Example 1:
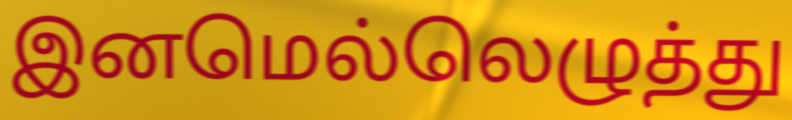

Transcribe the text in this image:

இனமெல்லெழுத்து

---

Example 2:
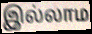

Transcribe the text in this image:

இல்லாம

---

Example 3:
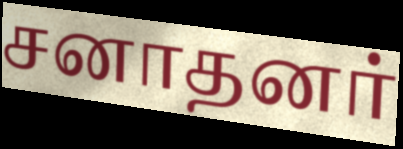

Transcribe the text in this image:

சனாதனர்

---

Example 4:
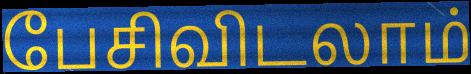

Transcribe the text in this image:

பேசிவிடலாம்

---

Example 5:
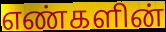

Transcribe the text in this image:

எண்களின்